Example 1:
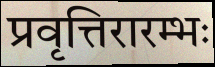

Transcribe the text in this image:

प्रवृत्तिरारम्भः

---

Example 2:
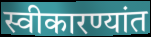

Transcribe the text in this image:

स्वीकारण्यांत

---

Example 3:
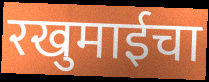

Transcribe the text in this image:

रखुमाईचा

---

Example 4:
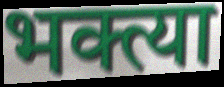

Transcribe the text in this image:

भक्त्या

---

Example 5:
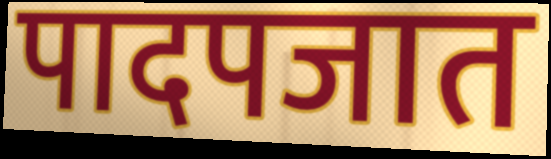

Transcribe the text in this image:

पादपजात